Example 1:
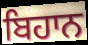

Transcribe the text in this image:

ਬਿਹਾਨ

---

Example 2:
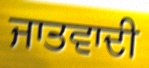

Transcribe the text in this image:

ਜਾਤਵਾਦੀ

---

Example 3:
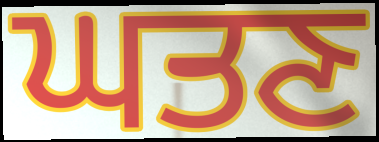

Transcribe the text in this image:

ਘਤਣ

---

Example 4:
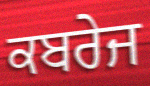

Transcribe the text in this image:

ਕਬਰੇਜ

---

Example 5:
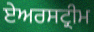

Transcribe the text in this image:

ਏਅਰਸਟ੍ਰੀਮ